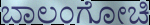
ಬಾಲಂಗೋಚಿ